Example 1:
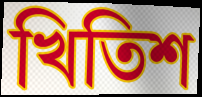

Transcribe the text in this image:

খিতিশ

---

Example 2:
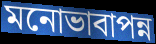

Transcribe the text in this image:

মনোভাবাপন্ন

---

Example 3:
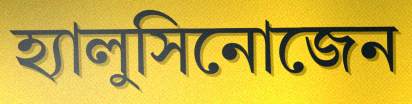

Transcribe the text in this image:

হ্যালুসিনোজেন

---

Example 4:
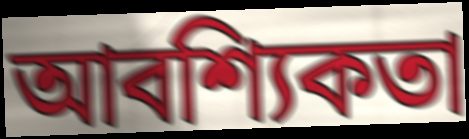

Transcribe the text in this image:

আবশ্যিকতা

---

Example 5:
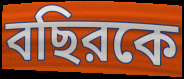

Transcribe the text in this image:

বছিরকে